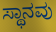
ಸ್ಥಾನವು